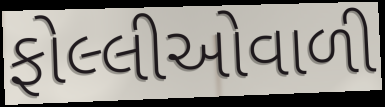
ફોલ્લીઓવાળી